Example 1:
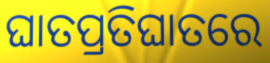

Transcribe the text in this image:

ଘାତପ୍ରତିଘାତରେ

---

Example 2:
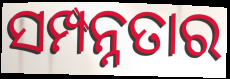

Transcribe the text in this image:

ସମ୍ପନ୍ନତାର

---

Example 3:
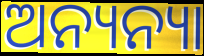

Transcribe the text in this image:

ଅନ୍ୟନ୍ୟା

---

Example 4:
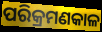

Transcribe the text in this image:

ପରିକ୍ରମଣକାଳ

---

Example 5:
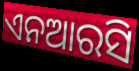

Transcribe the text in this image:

ଏନଆରସି